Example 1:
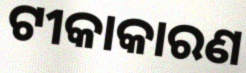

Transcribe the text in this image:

ଟୀକାକାରଣ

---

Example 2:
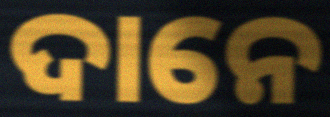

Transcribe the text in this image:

ଦାନେ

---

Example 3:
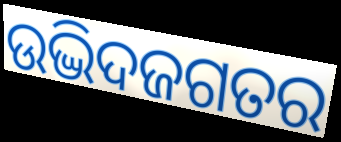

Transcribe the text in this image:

ଉଦ୍ଭିଦଜଗତର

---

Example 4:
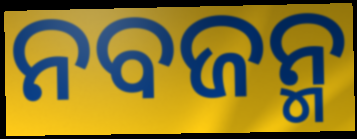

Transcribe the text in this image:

ନବଜନ୍ମ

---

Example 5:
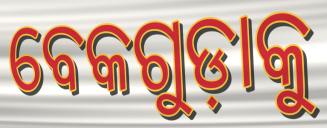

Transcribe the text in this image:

ବେକଗୁଡ଼ାକୁ